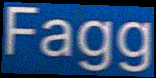
Fagg